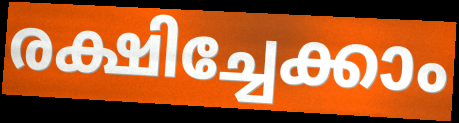
രക്ഷിച്ചേക്കാം